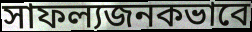
সাফল্যজনকভাবে